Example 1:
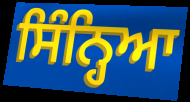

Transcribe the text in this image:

ਸਿੰਨ੍ਹਿਆ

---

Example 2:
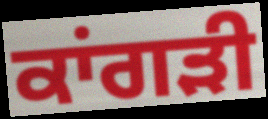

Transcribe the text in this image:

ਕਾਂਗੜੀ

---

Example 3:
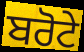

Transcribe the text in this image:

ਬਰੋਟੇ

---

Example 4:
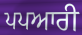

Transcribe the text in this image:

ਪਪਆਰੀ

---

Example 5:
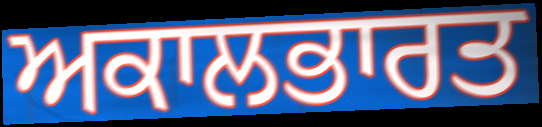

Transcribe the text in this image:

ਅਕਾਲਭਾਰਤ